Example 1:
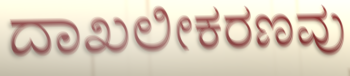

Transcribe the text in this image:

ದಾಖಲೀಕರಣವು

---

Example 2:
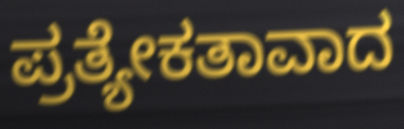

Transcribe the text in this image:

ಪ್ರತ್ಯೇಕತಾವಾದ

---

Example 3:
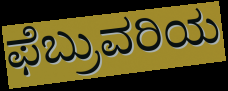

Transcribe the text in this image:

ಫೆಬ್ರುವರಿಯ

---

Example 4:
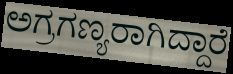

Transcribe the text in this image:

ಅಗ್ರಗಣ್ಯರಾಗಿದ್ದಾರೆ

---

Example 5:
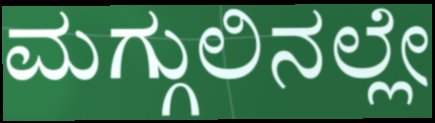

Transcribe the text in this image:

ಮಗ್ಗುಲಿನಲ್ಲೇ